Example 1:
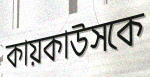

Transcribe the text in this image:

কায়কাউসকে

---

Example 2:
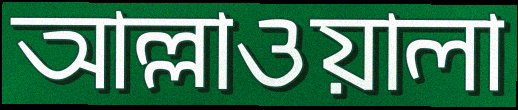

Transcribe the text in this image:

আল্লাওয়ালা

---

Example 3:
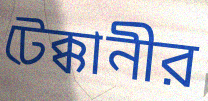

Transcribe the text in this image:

টেক্কানীর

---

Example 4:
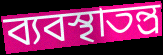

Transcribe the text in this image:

ব্যবস্থাতন্ত্র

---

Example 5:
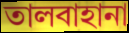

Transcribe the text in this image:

তালবাহানা